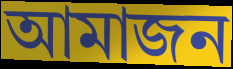
আমাজন